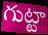
గుట్టా